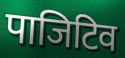
पाजिटिव